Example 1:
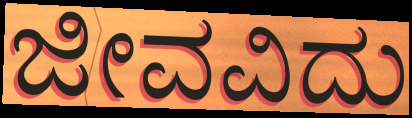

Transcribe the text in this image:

ಜೀವವಿದು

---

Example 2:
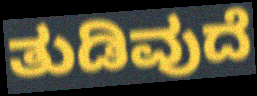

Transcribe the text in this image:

ತುಡಿವುದೆ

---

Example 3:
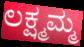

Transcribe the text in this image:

ಲಕ್ಷ್ಮಮ್ಮ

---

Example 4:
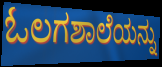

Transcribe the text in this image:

ಓಲಗಶಾಲೆಯನ್ನು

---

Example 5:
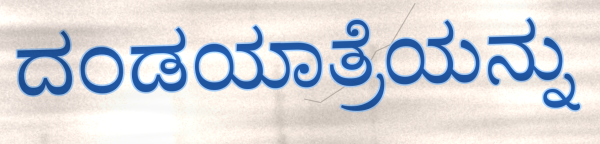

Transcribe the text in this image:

ದಂಡಯಾತ್ರೆಯನ್ನು